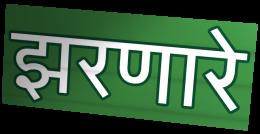
झरणारे